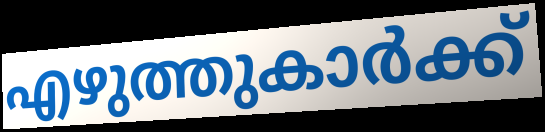
എഴുത്തുകാർക്ക്